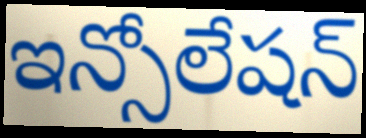
ఇన్సోలేషన్